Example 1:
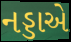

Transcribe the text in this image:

નડ્ડાએ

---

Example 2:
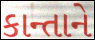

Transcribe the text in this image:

કાન્તાને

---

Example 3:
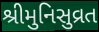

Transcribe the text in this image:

શ્રીમુનિસુવ્રત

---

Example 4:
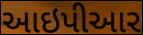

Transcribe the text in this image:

આઇપીઆર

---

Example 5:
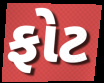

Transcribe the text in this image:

ફોટ